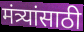
मंत्र्यांसाठी